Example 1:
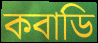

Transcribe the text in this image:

কবাডি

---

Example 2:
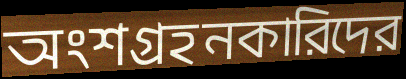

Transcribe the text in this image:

অংশগ্রহনকারিদের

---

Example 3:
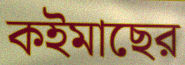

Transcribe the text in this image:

কইমাছের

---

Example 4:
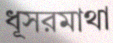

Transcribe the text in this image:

ধূসরমাথা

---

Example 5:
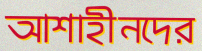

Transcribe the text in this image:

আশাহীনদের